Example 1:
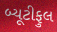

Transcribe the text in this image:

બ્યૂટીફુલ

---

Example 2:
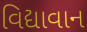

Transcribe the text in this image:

વિદ્યાવાન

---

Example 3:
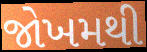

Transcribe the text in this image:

જોખમથી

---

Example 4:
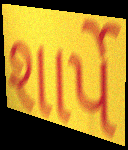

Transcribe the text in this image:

શાર્પે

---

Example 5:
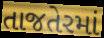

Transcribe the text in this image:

તાજતેરમાં